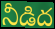
నీడిద